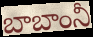
బాబాంనీ